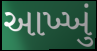
આખ્ખું